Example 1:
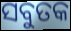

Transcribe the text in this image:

ସବୁତକ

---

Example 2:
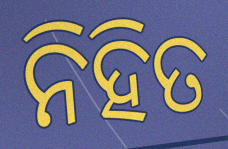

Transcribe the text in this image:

ନିହିତ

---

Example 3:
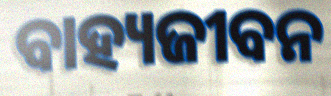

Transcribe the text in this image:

ବାହ୍ୟଜୀବନ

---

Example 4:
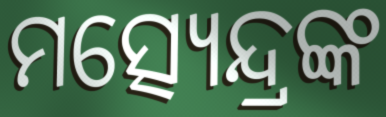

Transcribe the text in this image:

ମତ୍ସ୍ୟେନ୍ଦ୍ରଙ୍କ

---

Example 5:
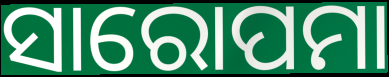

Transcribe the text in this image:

ସାରୋପମା